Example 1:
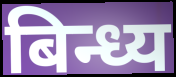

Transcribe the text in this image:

बिन्ध्य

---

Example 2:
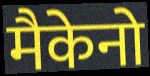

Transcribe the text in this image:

मैकेनो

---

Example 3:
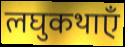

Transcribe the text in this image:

लघुकथाएँ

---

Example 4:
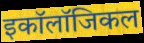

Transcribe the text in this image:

इकॉलॉजिकल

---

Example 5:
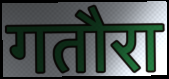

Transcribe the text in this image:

गतौरा